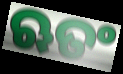
ଋତଂ